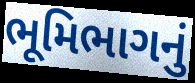
ભૂમિભાગનું